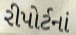
રીપોર્ટનાં